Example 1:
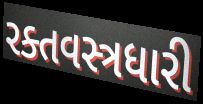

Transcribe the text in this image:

રક્તવસ્ત્રધારી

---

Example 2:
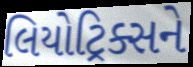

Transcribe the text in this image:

લિયોટ્રિક્સને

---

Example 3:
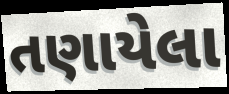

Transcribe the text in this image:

તણાયેલા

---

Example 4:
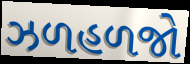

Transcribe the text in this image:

ઝળહળજો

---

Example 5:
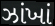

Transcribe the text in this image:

ઝાંખાં